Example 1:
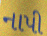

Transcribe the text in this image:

નાપી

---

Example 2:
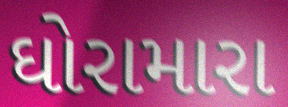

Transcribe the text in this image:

ઘોરામારા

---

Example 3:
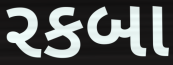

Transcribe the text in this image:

રકબા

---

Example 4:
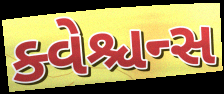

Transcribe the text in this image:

ક્વેશ્ચન્સ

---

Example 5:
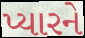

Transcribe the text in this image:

પ્યારને